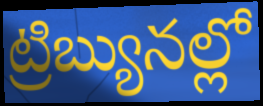
ట్రిబ్యునల్లో